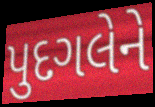
પુદગલેને